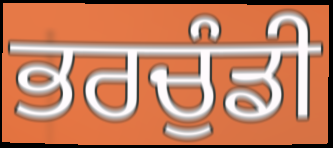
ਭਰਚੁੰਡੀ